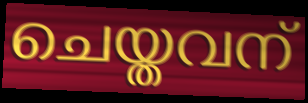
ചെയ്തവന്